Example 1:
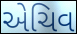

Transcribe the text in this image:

એચિવ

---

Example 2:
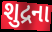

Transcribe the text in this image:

શુદ્રના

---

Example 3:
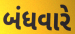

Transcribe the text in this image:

બંધવારે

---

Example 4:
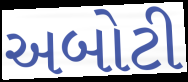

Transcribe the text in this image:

અબોટી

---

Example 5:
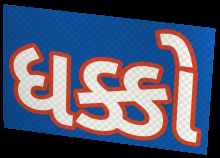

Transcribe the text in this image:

ધક્કો